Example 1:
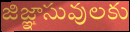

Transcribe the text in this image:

జిజ్ఞాసువులకు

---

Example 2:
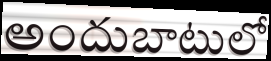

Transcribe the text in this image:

అందుబాటులో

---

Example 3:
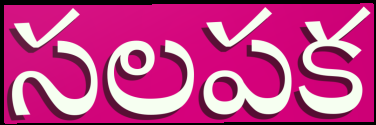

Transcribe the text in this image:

సలపక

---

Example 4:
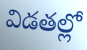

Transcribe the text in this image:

విడతల్లో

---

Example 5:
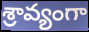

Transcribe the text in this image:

శ్రావ్యంగా